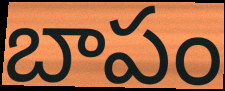
బాపం